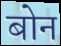
बोन